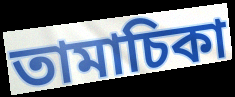
তামাচিকা